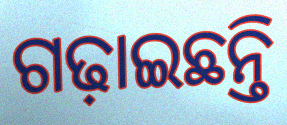
ଗଢ଼ାଇଛନ୍ତି